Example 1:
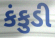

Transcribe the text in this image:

કંકુડી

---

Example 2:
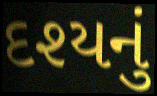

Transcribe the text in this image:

દશ્યનું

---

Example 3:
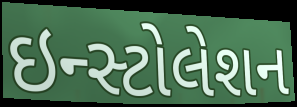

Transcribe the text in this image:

ઇન્સ્ટોલેશન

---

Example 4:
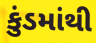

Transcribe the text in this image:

કુંડમાંથી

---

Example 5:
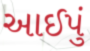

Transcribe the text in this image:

આઈપું